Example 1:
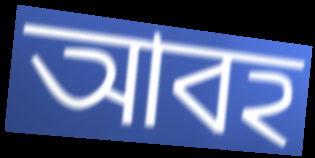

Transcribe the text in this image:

আবহ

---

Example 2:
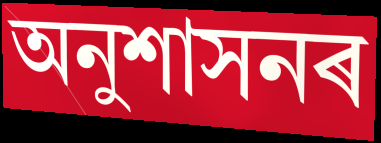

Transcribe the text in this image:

অনুশাসনৰ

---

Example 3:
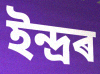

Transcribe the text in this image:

ইন্দ্ৰৰ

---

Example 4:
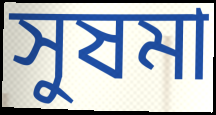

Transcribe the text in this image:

সুষমা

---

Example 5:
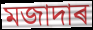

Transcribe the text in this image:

মজাদাৰ